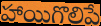
హాయిగొలిపే